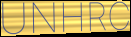
UNHRC